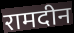
रामदीन